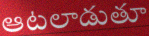
ఆటలాడుతూ